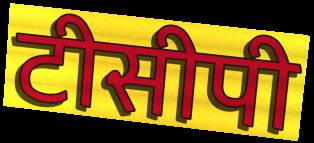
टीसीपी